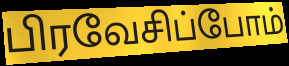
பிரவேசிப்போம்